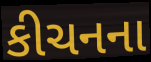
કીચનના